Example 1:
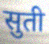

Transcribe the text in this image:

सुती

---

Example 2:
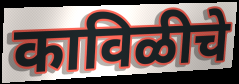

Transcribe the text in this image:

काविळीचे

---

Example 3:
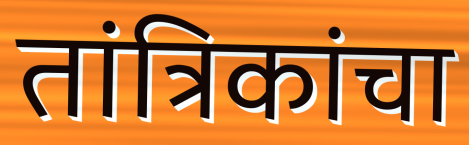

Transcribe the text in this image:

तांत्रिकांचा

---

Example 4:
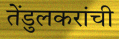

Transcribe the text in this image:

तेंडुलकरांची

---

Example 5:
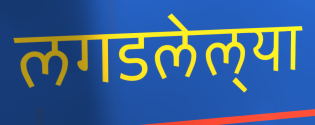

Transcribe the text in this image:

लगडलेल्या